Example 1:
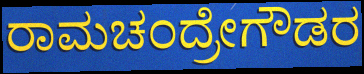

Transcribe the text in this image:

ರಾಮಚಂದ್ರೇಗೌಡರ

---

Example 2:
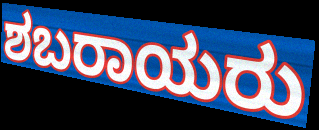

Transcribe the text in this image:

ಶಬರಾಯರು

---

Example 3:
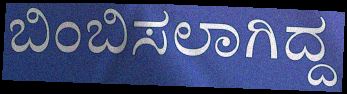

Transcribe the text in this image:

ಬಿಂಬಿಸಲಾಗಿದ್ದ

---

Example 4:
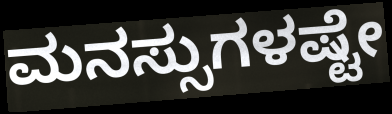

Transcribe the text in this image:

ಮನಸ್ಸುಗಳಷ್ಟೇ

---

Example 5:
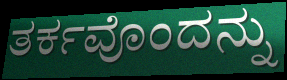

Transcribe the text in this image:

ತರ್ಕವೊಂದನ್ನು